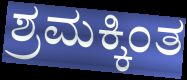
ಶ್ರಮಕ್ಕಿಂತ